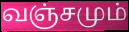
வஞ்சமும்